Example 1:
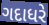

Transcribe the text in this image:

ગદાધરે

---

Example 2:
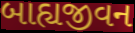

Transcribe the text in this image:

બાહ્યજીવન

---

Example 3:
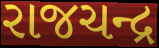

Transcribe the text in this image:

રાજચન્દ્ર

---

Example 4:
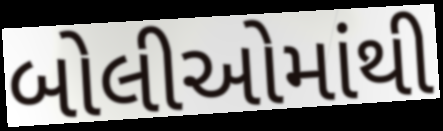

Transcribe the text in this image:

બોલીઓમાંથી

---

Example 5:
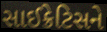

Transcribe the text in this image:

સાઈક્રેટિસને